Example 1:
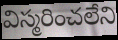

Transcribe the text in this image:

విస్మరించలేని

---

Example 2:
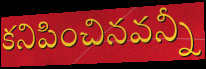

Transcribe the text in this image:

కనిపించినవన్నీ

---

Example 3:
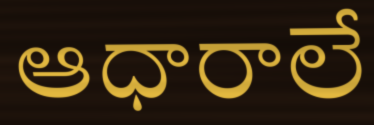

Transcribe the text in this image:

ఆధారాలే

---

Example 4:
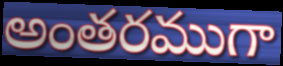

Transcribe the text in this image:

అంతరముగా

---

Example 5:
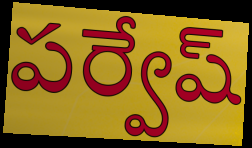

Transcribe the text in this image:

పర్వేష్